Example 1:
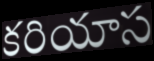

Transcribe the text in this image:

కరియాస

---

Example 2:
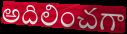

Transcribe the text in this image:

అదిలించగా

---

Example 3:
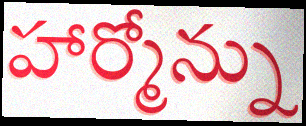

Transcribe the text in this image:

హార్మోన్ను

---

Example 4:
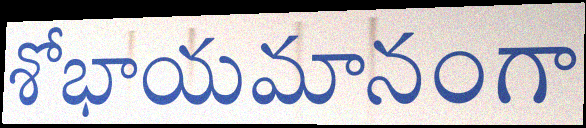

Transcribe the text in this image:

శోభాయమానంగా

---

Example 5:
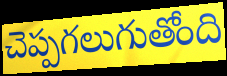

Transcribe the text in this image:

చెప్పగలుగుతోంది